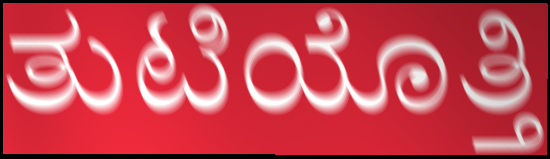
ತುಟಿಯೊತ್ತಿ